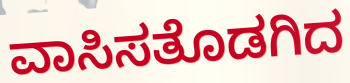
ವಾಸಿಸತೊಡಗಿದ